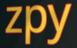
zpy